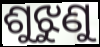
ଶୁଝୁଣୁ